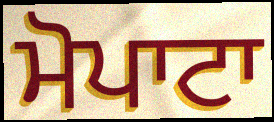
ਮੋਪਾਟਾ